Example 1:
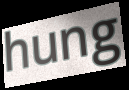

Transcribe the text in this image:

hung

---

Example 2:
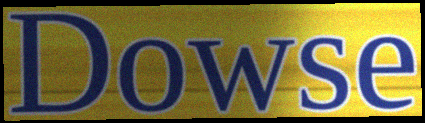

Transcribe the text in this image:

Dowse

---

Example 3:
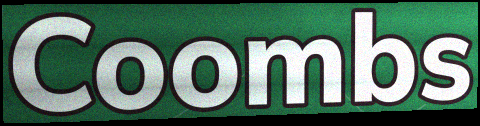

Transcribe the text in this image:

Coombs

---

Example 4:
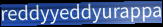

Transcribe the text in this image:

reddyyeddyurappa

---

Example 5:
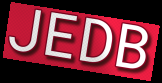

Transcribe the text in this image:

JEDB